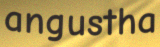
angustha